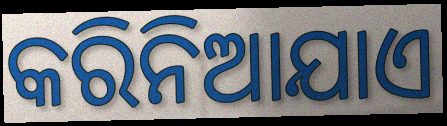
କରିନିଆଯାଏ